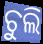
ଚୁଲି